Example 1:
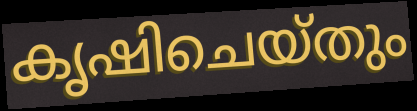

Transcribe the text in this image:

കൃഷിചെയ്തും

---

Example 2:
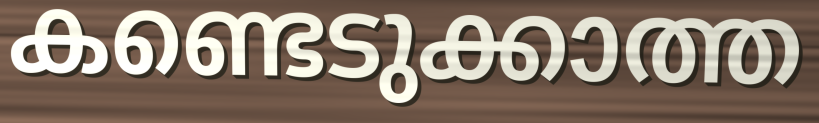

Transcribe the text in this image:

കണ്ടെടുക്കാത്ത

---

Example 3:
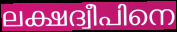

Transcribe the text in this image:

ലക്ഷദ്വീപിനെ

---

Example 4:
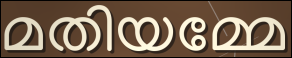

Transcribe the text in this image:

മതിയമ്മേ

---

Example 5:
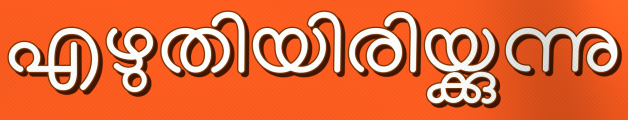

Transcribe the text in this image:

എഴുതിയിരിയ്ക്കുന്നു